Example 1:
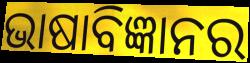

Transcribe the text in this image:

ଭାଷାବିଜ୍ଞାନର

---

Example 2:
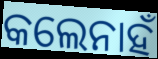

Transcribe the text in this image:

କଲେନାହଁ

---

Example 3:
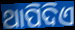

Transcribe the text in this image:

ଥାପିଦିଏ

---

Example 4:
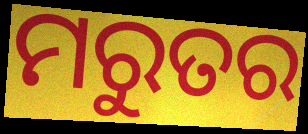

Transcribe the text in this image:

ମରୁତର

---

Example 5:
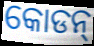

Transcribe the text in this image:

କୋଡନ୍